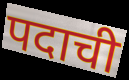
पदाची